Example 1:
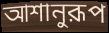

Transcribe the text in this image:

আশানুরূপ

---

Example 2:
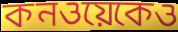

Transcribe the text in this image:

কনওয়েকেও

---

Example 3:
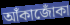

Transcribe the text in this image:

আঁকাজোঁকা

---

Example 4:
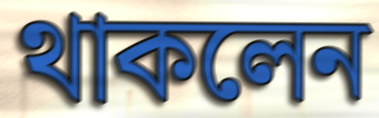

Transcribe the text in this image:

থাকলেন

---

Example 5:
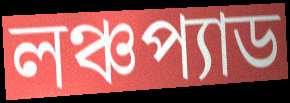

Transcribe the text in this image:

লঞ্চপ্যাড